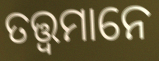
ତତ୍ତ୍ବମାନେ